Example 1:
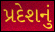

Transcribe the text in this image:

પ્રદેશનું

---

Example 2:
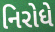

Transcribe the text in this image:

નિરોધે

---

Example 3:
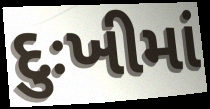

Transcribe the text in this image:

દુઃખીમાં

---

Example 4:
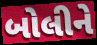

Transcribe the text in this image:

બોલીને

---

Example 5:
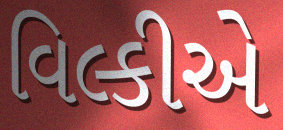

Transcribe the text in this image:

વિલ્કીએ